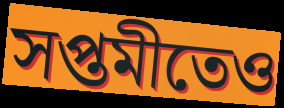
সপ্তমীতেও